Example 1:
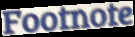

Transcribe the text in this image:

Footnote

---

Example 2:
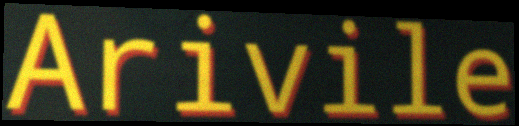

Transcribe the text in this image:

Arivile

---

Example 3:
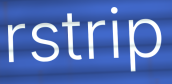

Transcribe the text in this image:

rstrip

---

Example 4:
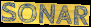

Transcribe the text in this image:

SONAR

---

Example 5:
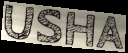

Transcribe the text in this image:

USHA